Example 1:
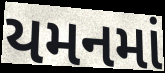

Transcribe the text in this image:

યમનમાં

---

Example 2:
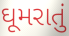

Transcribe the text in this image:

ઘૂમરાતું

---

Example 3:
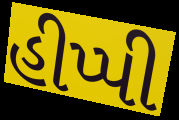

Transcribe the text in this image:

હીપ્પી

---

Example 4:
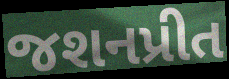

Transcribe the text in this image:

જશનપ્રીત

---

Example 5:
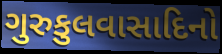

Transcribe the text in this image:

ગુરુકુલવાસાદિનો